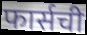
फार्सची